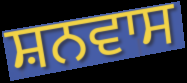
ਸ਼ਨਵਾਸ